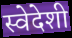
स्वेदेशी